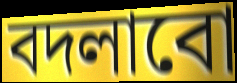
বদলাবো